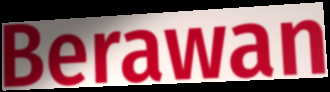
Berawan